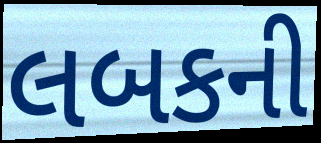
લબકની